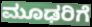
ಮೂಢರಿಗೆ